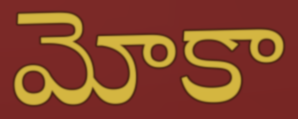
మోకా